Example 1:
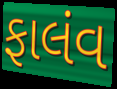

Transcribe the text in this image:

ફાલંવ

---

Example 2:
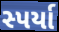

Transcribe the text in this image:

સ્પર્યા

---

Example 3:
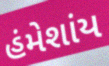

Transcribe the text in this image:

હંમેશાંય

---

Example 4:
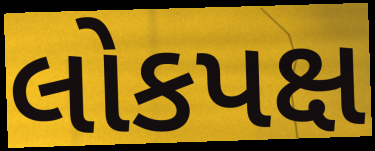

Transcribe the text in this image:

લોકપક્ષ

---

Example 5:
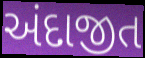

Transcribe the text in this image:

અંદાજીત